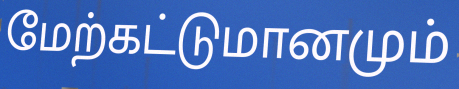
மேற்கட்டுமானமும்